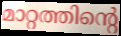
മാറ്റത്തിന്റെ